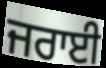
ਜਰਾਈ